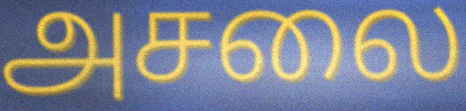
அசலை